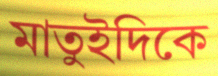
মাতুইদিকে